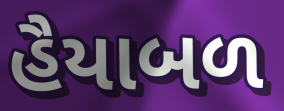
હૈયાબળ